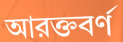
আরক্তবর্ণ